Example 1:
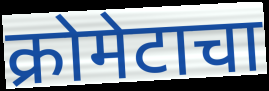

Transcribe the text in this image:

क्रोमेटाचा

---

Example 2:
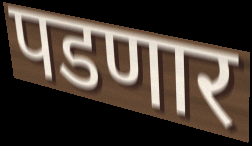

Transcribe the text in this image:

पडणार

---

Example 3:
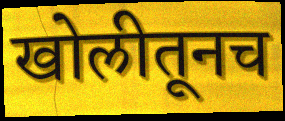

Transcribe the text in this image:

खोलीतूनच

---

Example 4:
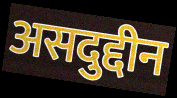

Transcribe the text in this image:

असदुद्दीन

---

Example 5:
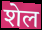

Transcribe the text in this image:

शेल